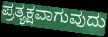
ಪ್ರತ್ಯಕ್ಷವಾಗುವುದು